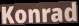
Konrad